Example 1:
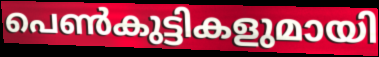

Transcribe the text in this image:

പെൺകുട്ടികളുമായി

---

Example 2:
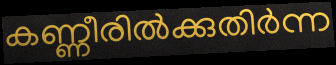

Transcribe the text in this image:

കണ്ണീരിൽക്കുതിർന്ന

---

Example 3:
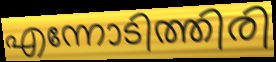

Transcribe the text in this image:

എന്നോടിത്തിരി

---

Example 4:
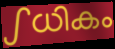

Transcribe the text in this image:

ഽധികം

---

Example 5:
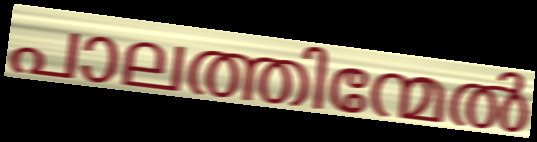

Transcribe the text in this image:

പാലത്തിന്മേൽ